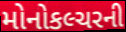
મોનોકલ્ચરની